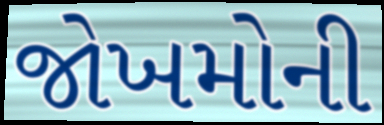
જોખમોની